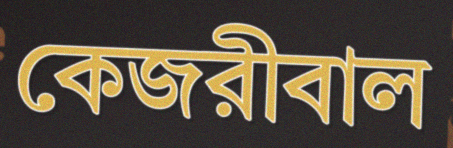
কেজরীবাল